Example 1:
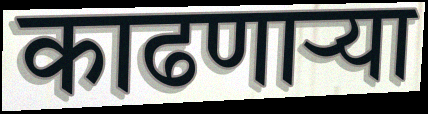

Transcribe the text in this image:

काढणार्‍या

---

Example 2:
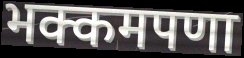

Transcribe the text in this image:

भक्कमपणा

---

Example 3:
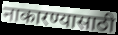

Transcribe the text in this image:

नाकारण्यासाठी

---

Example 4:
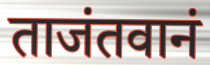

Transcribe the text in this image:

ताजंतवानं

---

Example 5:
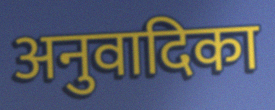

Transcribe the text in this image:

अनुवादिका